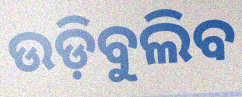
ଉଡ଼ିବୁଲିବ